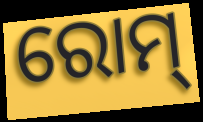
ରୋମ୍